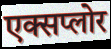
एक्सप्लोर